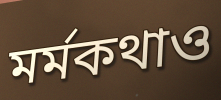
মর্মকথাও